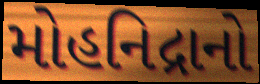
મોહનિદ્રાનો